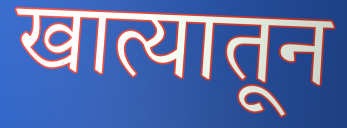
खात्यातून